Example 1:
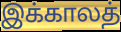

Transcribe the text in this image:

இக்காலத்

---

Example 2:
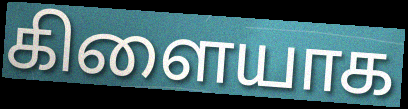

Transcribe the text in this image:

கிளையாக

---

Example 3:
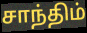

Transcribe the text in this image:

சாந்திம்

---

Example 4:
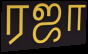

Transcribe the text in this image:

ரஜா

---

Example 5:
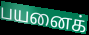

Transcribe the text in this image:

பயனைக்